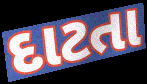
દાટતા